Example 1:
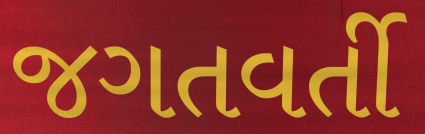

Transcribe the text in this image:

જગતવર્તી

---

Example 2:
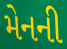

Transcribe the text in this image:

મેનની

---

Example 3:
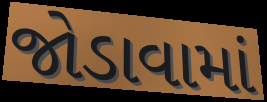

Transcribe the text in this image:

જોડાવામાં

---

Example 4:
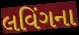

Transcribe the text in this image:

લવિંગના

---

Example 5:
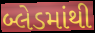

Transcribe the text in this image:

બ્લેડમાંથી